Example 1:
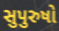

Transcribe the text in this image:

સુપુરુષો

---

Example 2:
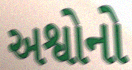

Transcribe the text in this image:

અશ્વોનો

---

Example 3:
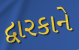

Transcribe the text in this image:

દ્વારકાને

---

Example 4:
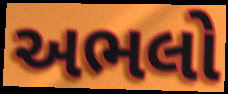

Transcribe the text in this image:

અભલો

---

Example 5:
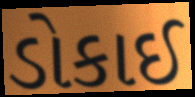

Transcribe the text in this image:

ડોકાઈ